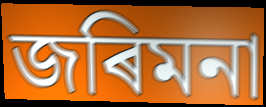
জৰিমনা